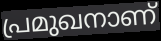
പ്രമുഖനാണ്